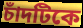
চাঁদটিকে